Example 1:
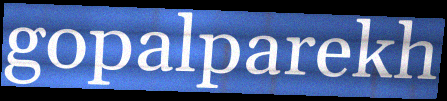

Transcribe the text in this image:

gopalparekh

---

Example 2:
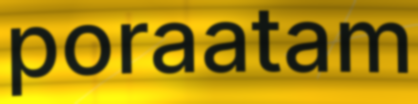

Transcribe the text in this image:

poraatam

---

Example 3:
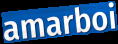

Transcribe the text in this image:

amarboi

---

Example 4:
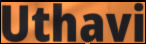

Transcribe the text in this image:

Uthavi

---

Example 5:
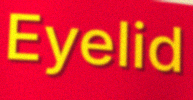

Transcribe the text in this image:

Eyelid